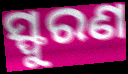
ସ୍ଫୁରଣ